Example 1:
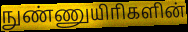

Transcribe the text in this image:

நுண்ணுயிரிகளின்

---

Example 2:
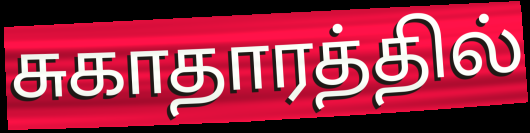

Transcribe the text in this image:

சுகாதாரத்தில்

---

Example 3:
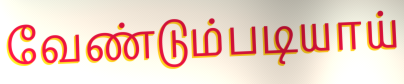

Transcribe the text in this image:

வேண்டும்படியாய்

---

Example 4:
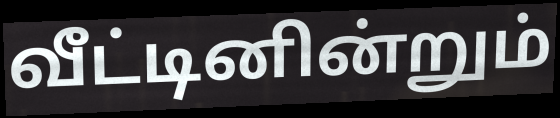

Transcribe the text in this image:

வீட்டினின்றும்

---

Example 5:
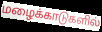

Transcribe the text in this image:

மழைக்காடுகளில்